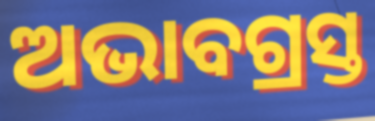
ଅଭାବଗ୍ରସ୍ତ